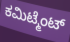
ಕಮಿಟ್ಮೆಂಟ್